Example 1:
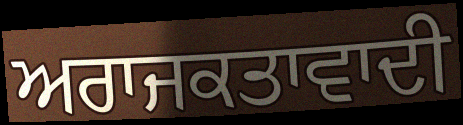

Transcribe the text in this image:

ਅਰਾਜਕਤਾਵਾਦੀ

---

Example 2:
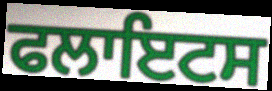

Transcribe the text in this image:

ਫਲਾਇਟਸ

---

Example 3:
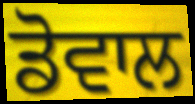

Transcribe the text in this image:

ਡੋਵਾਲ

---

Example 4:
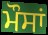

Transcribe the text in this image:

ਮੌਸਾਂ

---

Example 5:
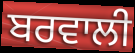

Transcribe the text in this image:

ਬਰਵਾਲੀ